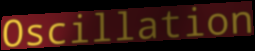
Oscillation